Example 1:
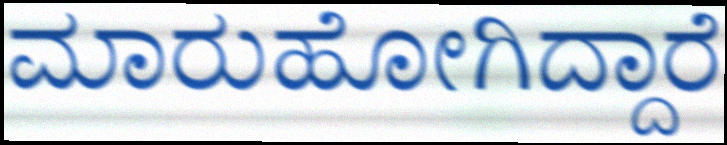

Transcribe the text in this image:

ಮಾರುಹೋಗಿದ್ದಾರೆ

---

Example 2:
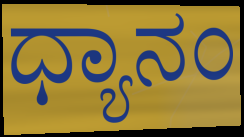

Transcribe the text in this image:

ಧ್ಯಾನಂ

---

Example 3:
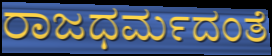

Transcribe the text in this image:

ರಾಜಧರ್ಮದಂತೆ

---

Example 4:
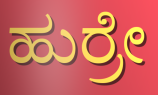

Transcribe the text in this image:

ಹುರ್ರೇ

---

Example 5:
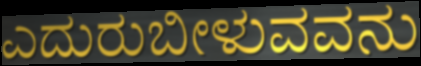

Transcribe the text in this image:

ಎದುರುಬೀಳುವವನು